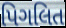
પિગલિત